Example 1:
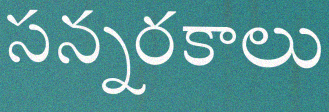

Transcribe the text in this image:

సన్నరకాలు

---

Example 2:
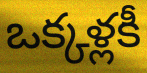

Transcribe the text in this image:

ఒక్కళ్లకీ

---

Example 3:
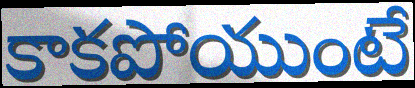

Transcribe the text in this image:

కాకపోయుంటే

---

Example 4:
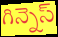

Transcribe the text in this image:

గిన్నెస్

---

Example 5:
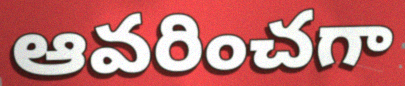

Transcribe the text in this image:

ఆవరించగా